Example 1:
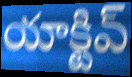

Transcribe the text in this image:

యాక్టివ్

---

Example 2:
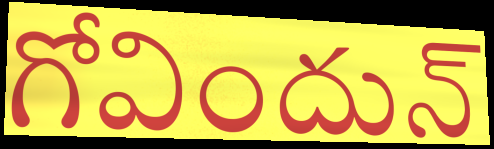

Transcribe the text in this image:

గోవిందున్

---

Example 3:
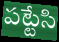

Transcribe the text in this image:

పట్టేసి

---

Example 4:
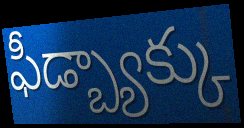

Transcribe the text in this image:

ఫీడ్బ్యాక్కు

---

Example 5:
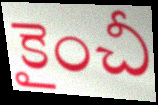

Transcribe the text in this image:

కైంచీ